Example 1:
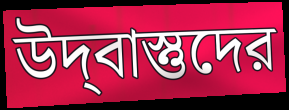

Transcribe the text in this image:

উদ্‌বাস্তুদের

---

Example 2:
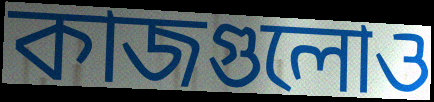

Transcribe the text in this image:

কাজগুলোও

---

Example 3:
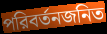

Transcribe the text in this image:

পরিবর্তনজনিত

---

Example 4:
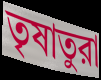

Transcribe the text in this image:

তৃষাতুরা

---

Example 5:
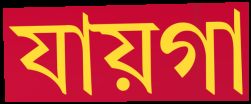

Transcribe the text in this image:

যায়গা